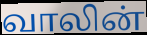
வாலின்